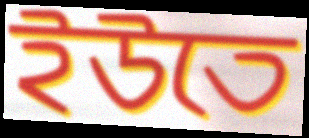
ইউতে